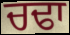
ਚਢਾ